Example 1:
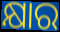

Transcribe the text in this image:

କ୍ଷାର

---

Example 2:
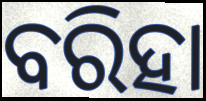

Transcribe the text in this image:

ବରିହା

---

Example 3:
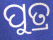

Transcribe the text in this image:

ପୁତ୍ର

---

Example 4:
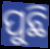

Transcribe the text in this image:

ପୁଛି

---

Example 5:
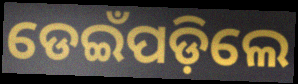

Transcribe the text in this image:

ଡେଇଁପଡ଼ିଲେ